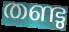
തണ്ടു